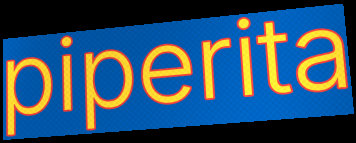
piperita